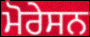
ਮੋਰੇਸਨ